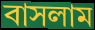
বাসলাম